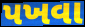
પખવા